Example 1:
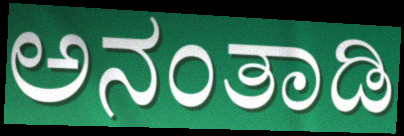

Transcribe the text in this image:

ಅನಂತಾಡಿ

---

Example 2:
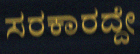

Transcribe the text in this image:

ಸರಕಾರದ್ದೇ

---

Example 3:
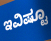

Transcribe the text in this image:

ಇವಿಷ್ಟೂ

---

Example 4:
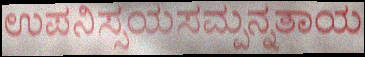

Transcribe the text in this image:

ಉಪನಿಸ್ಸಯಸಮ್ಪನ್ನತಾಯ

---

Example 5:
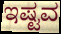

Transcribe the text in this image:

ಇಷ್ಟವ